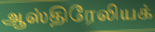
ஆஸ்திரேலியக்